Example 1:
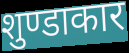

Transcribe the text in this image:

शुण्डाकार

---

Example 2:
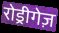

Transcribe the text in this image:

रोड्रीगेज़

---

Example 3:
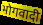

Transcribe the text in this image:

भोगवादी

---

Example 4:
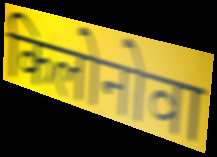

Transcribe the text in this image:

किलोनोवा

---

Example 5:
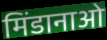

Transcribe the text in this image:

मिंडानाओ